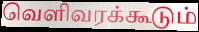
வெளிவரக்கூடும்